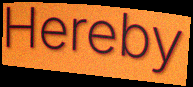
Hereby